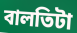
বালতিটা